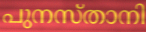
പുനസ്താനി